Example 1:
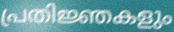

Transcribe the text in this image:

പ്രതിജ്ഞകളും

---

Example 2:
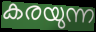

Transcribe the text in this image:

കരയുന്ന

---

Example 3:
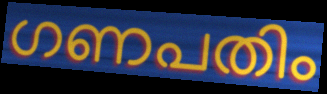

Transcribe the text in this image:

ഗണപതിം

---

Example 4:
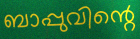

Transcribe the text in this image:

ബാപ്പുവിന്റെ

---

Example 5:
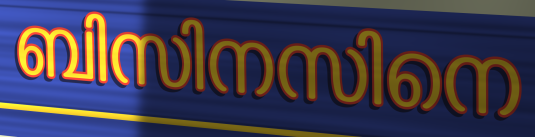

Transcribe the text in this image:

ബിസിനസിനെ